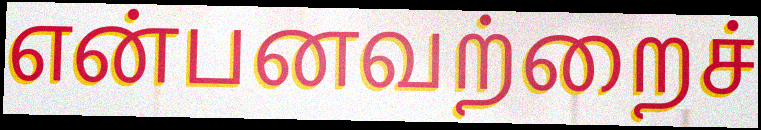
என்பனவற்றைச்